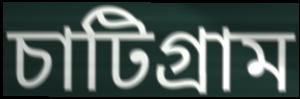
চাটিগ্রাম